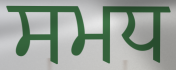
ਸਮਧ